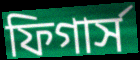
ফিগার্স